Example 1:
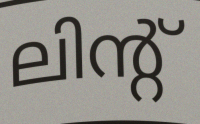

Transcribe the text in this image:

ലിന്റ്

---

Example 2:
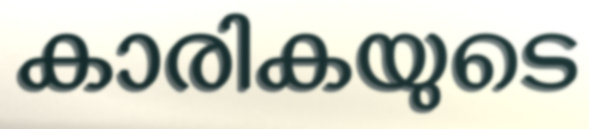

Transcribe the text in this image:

കാരികയുടെ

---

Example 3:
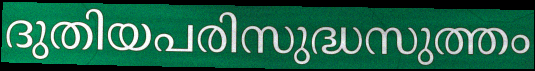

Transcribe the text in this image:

ദുതിയപരിസുദ്ധസുത്തം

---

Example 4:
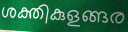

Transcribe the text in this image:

ശക്തികുളങ്ങര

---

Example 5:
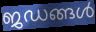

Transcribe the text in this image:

ജഡങ്ങൾ